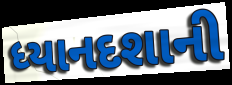
ધ્યાનદશાની